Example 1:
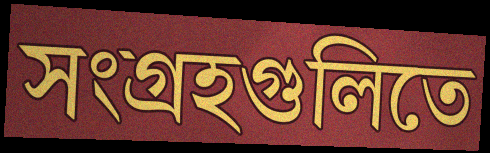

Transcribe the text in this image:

সংগ্রহগুলিতে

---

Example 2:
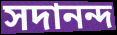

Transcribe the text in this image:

সদানন্দ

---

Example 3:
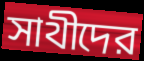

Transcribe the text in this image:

সাথীদের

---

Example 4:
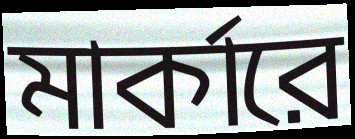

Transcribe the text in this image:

মার্কারে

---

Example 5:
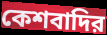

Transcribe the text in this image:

কেশবাদির